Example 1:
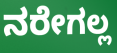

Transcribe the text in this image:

ನರೇಗಲ್ಲ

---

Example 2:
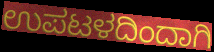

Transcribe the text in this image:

ಉಪಟಳದಿಂದಾಗಿ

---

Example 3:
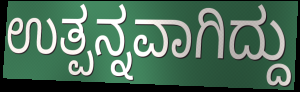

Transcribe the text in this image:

ಉತ್ಪನ್ನವಾಗಿದ್ದು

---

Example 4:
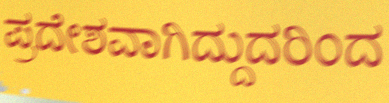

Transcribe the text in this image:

ಪ್ರದೇಶವಾಗಿದ್ದುದರಿಂದ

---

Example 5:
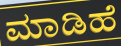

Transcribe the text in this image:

ಮಾಡಿಹೆ